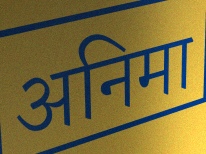
अनिमा